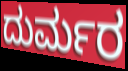
ದುರ್ಮರ